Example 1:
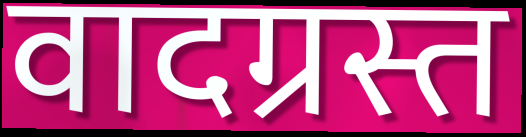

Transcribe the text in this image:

वादग्रस्त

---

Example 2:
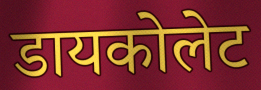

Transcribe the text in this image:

डायकोलेट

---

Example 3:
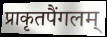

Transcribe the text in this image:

प्राकृतपैंगलम्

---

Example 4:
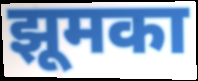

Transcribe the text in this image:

झूमका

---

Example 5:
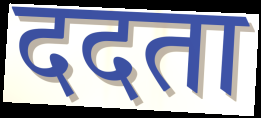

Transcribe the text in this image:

ददता